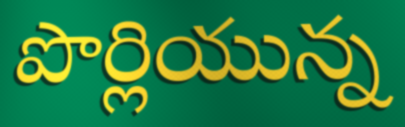
పొర్లియున్న